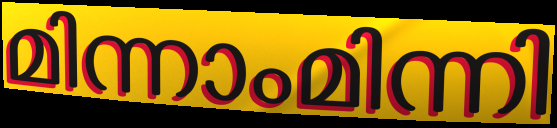
മിന്നാംമിന്നി